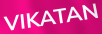
VIKATAN